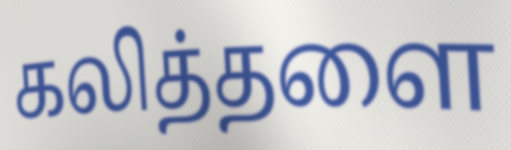
கலித்தளை